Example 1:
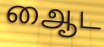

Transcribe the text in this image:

ஆைட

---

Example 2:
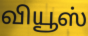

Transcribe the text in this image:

வியூஸ்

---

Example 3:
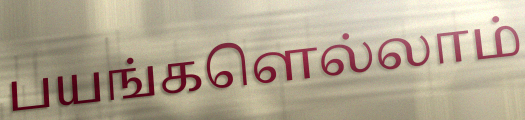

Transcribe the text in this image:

பயங்களெல்லாம்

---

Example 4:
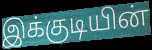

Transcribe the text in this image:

இக்குடியின்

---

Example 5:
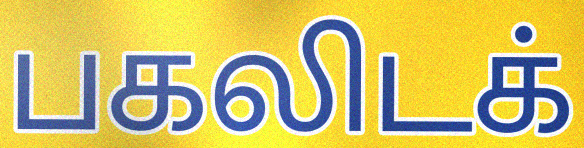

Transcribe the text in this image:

பகலிடக்